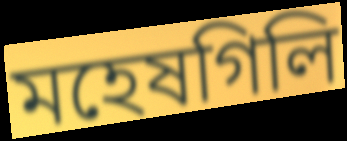
মহেষগিলি